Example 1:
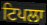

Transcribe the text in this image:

ਟਿਪਲਾ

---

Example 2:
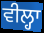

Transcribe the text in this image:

ਵੀਲ੍ਹਾ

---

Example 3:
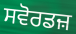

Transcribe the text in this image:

ਸਵੋਰਡਜ਼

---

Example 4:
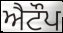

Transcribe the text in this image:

ਐਟੌਪ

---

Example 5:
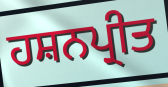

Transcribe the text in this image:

ਹਸ਼ਨਪ੍ਰੀਤ